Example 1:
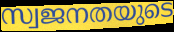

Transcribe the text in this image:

സ്വജനതയുടെ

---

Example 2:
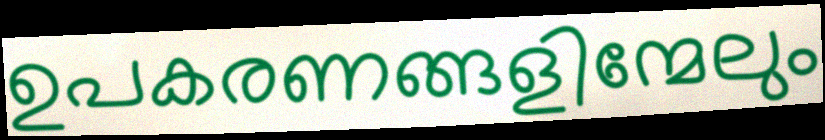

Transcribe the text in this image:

ഉപകരണങ്ങളിന്മേലും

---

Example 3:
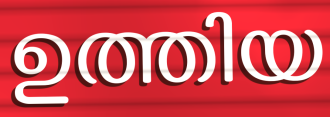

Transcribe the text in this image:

ഉത്തിയ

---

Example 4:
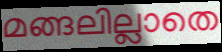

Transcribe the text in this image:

മങ്ങലില്ലാതെ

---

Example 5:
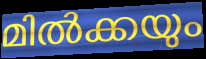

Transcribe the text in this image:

മിൽക്കയും